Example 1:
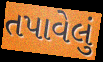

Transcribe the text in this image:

તપાવેલું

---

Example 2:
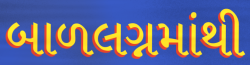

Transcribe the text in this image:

બાળલગ્નમાંથી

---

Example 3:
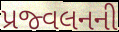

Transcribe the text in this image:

પ્રજ્વલનની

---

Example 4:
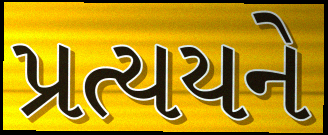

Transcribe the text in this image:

પ્રત્યયને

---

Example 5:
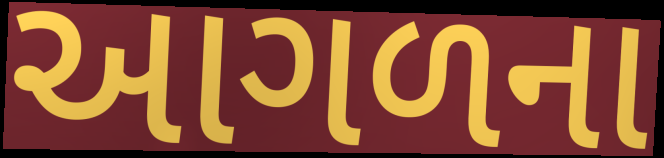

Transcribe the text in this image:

આગળના